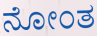
ನೋಂತ